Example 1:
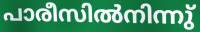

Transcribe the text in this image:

പാരീസിൽനിന്നു്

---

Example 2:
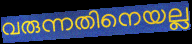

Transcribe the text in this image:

വരുന്നതിനെയല്ല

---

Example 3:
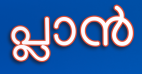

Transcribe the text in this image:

പ്ലാൻ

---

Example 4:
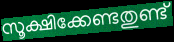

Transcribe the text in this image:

സൂക്ഷിക്കേണ്ടതുണ്ട്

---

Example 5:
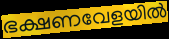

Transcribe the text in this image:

ഭക്ഷണവേളയിൽ